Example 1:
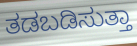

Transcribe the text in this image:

ತಡಬಡಿಸುತ್ತಾ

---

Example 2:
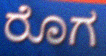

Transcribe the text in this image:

ರೊಗ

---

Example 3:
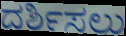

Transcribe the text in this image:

ದರ್ಶಿಸಲು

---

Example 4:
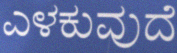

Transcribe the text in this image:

ಎಳಕುವುದೆ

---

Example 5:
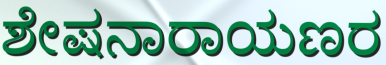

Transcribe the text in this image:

ಶೇಷನಾರಾಯಣರ